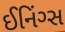
ઈનિંગ્સ